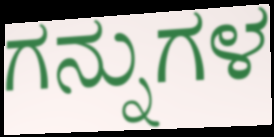
ಗನ್ನುಗಳ